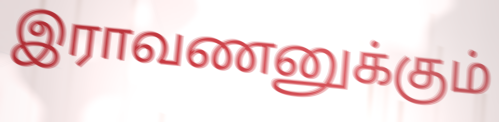
இராவணனுக்கும்